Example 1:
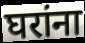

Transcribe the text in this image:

घरांना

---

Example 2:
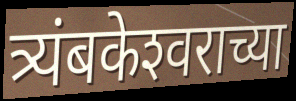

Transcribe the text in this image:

त्र्यंबकेश्‍वराच्या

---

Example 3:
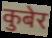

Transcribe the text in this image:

कुबेर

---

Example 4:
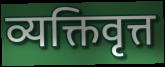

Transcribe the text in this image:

व्यक्तिवृत्त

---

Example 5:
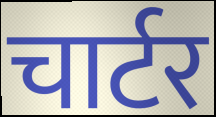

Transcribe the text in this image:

चार्टर